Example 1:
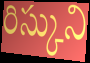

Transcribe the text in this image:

రిస్కుని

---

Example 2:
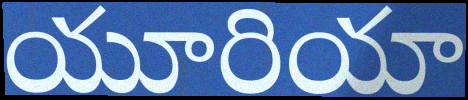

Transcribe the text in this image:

యూరియా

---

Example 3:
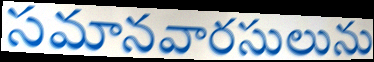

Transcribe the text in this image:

సమానవారసులును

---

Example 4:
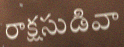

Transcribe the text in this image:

రాక్షసుడివా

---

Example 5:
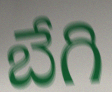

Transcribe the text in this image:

బేగి